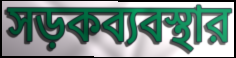
সড়কব্যবস্থার